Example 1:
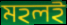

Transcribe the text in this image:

মহলই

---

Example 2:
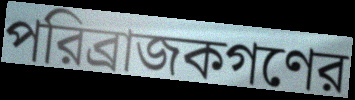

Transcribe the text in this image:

পরিব্রাজকগণের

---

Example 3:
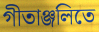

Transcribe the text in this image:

গীতাঞ্জলিতে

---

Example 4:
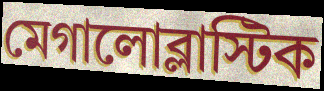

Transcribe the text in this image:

মেগালোব্লাস্টিক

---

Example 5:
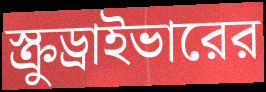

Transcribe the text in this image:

স্ক্রুড্রাইভারের